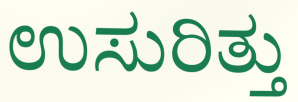
ಉಸುರಿತ್ತು